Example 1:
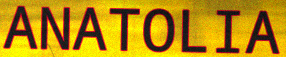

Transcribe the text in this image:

ANATOLIA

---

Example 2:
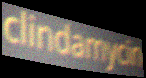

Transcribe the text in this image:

clindamycin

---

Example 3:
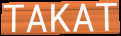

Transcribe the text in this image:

TAKAT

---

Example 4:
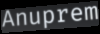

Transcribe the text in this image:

Anuprem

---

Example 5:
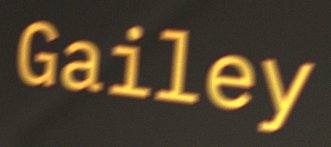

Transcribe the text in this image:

Gailey